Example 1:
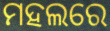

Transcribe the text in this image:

ମହଲରେ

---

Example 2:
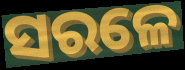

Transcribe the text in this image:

ସରଳେ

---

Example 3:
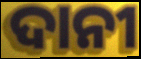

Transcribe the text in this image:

ଦାନୀ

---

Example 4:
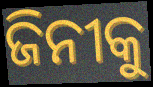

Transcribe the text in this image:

ଜିନୀକୁ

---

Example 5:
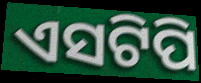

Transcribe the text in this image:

ଏସଟିପି